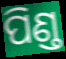
ପିଣ୍ଡ